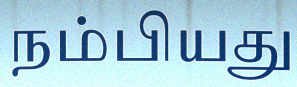
நம்பியது